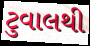
ટુવાલથી